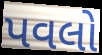
પવલો